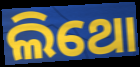
ଲିଥୋ